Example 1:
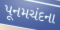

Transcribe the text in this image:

પૂનમચંદના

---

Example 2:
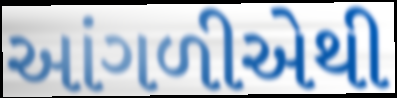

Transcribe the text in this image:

આંગળીએથી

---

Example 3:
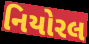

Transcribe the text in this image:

નિયોરલ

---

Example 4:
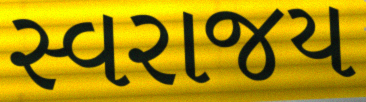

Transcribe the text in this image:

સ્વરાજય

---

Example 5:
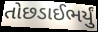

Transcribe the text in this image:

તોછડાઈભર્યું